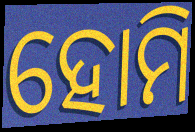
ହୋମି